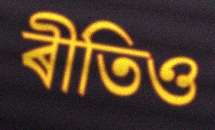
ৰীতিও